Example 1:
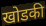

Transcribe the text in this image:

खोडकी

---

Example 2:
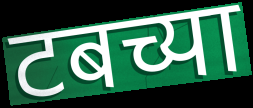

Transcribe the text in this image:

टबच्या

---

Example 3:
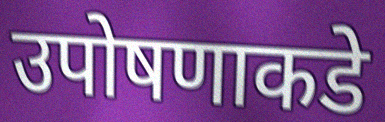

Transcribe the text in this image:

उपोषणाकडे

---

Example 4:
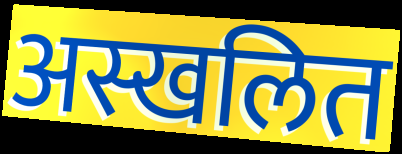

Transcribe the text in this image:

अस्खलित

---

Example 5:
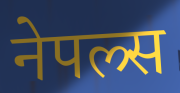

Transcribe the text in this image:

नेपल्स